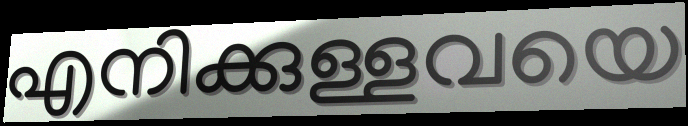
എനിക്കുള്ളവയെ